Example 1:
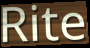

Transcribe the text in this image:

Rite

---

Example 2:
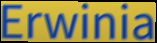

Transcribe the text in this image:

Erwinia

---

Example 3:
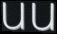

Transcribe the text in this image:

uu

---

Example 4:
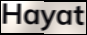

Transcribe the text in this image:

Hayat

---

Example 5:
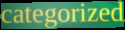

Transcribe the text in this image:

categorized